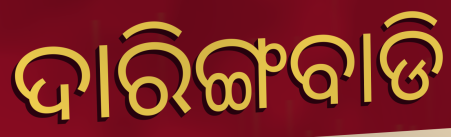
ଦାରିଙ୍ଗବାଡି